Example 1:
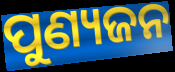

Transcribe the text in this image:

ପୁଣ୍ୟଜନ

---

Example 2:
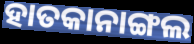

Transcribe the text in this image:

ହାତକାନାଙ୍ଗଲ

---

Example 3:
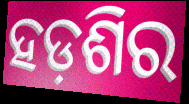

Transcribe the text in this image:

ହଡ଼ଶିର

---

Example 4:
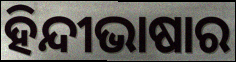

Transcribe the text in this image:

ହିନ୍ଦୀଭାଷାର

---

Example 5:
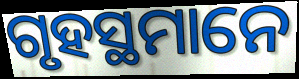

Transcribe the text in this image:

ଗୃହସ୍ଥମାନେ